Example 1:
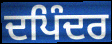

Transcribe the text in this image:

ਦਪਿੰਦਰ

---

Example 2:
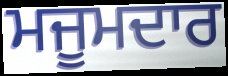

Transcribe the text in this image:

ਮਜੂਮਦਾਰ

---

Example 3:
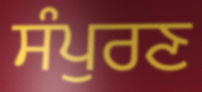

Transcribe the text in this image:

ਸੰਪੁਰਣ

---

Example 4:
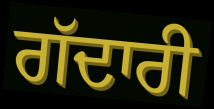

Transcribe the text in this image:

ਗੱਦਾਰੀ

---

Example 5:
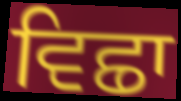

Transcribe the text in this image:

ਵਿਛਾ